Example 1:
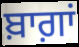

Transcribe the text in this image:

ਬ਼ਾਗ਼ਾਂ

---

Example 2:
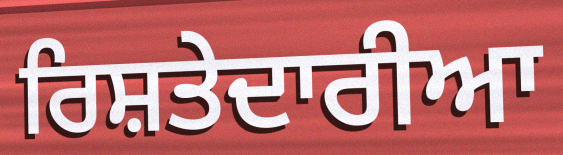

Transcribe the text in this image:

ਰਿਸ਼ਤੇਦਾਰੀਆ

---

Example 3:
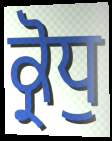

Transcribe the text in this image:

ਕ੍ਰੋਧੁ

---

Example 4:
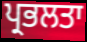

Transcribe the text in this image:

ਪ੍ਰਭਲਤਾ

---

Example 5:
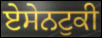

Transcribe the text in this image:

ਏਸੇਨਟੁਕੀ